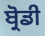
ਬ੍ਰੋਡੀ